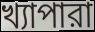
খ্যাপারা